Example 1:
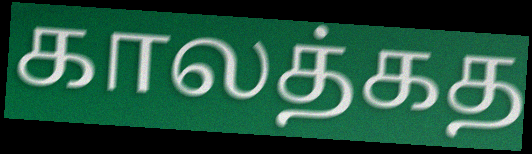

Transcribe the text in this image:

காலத்கத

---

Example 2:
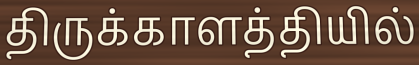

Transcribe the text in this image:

திருக்காளத்தியில்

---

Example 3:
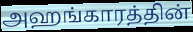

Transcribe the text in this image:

அஹங்காரத்தின்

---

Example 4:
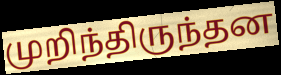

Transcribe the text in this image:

முறிந்திருந்தன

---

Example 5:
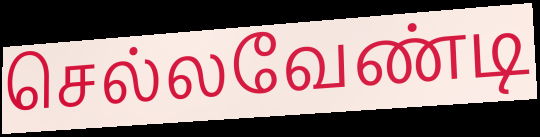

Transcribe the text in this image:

செல்லவேண்டி